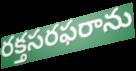
రక్తసరఫరాను